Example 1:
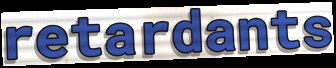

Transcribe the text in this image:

retardants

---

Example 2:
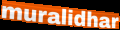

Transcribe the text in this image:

muralidhar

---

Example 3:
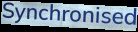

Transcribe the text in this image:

Synchronised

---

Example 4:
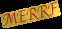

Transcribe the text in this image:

MERRF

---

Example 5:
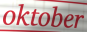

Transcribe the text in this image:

oktober